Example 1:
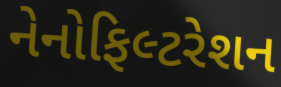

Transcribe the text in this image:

નેનોફિલ્ટરેશન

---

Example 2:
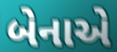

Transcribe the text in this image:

બેનાએ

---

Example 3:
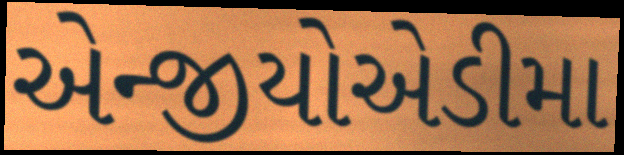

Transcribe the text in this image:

એન્જીયોએડીમા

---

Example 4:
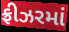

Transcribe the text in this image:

ફ્રીઝરમાં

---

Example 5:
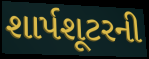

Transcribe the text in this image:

શાર્પશૂટરની